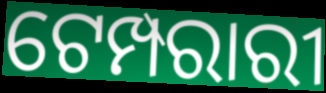
ଟେମ୍ପରାରୀ